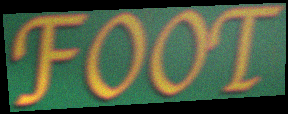
FOOT